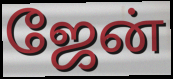
ஜேன்